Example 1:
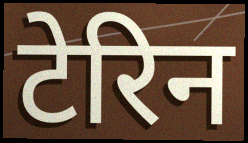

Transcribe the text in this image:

टेरिन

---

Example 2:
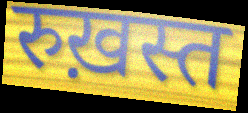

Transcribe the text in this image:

रुख़स्त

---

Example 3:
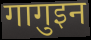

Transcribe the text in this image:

गागुइन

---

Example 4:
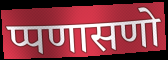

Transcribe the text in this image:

प्पणासणो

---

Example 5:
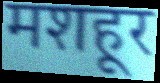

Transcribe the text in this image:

मशहूर